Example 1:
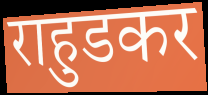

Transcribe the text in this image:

राहुडकर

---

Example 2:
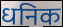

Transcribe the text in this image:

धनिक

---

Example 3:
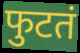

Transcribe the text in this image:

फुटतं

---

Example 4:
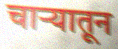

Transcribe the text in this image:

चाऱ्यातून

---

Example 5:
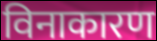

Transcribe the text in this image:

विनाकारण